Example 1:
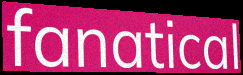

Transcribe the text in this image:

fanatical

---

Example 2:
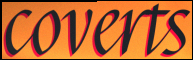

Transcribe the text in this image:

coverts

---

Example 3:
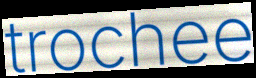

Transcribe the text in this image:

trochee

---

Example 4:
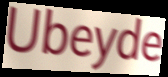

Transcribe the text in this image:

Ubeyde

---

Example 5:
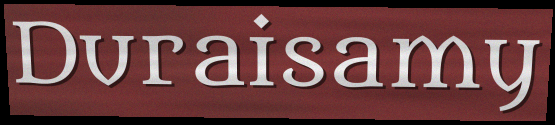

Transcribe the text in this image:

Duraisamy